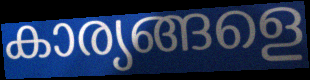
കാര്യങ്ങളെ